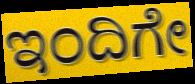
ಇಂದಿಗೇ